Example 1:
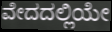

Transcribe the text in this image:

ವೇದದಲ್ಲಿಯೇ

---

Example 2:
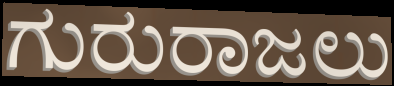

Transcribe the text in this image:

ಗುರುರಾಜಲು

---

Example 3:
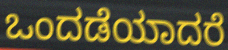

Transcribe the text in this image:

ಒಂದಡೆಯಾದರೆ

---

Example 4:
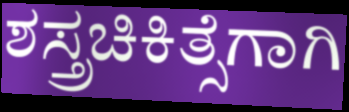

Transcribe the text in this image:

ಶಸ್ತ್ರಚಿಕಿತ್ಸೆಗಾಗಿ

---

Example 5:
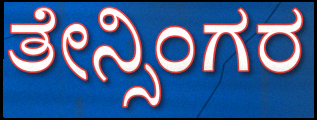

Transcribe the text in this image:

ತೇನ್ಸಿಂಗರ